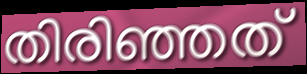
തിരിഞ്ഞത്